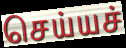
செய்யச்